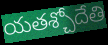
యతశ్చోదేతి